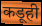
कडूही